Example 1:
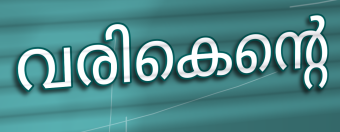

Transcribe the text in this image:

വരികെന്റെ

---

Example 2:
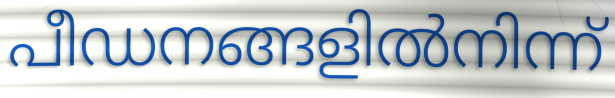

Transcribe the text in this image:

പീഡനങ്ങളിൽനിന്ന്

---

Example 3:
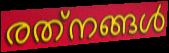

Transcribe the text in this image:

രത്‌നങ്ങൾ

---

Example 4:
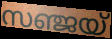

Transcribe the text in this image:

സഞ്ജയ്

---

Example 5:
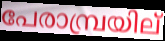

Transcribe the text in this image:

പേരാമ്പ്രയില്